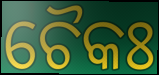
ଚୈକଃ